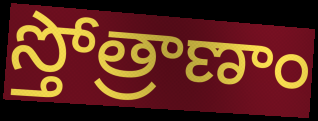
స్తోత్రాణాం